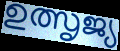
ഉത്സൃജ്യ